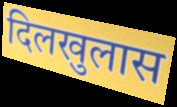
दिलखुलास